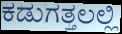
ಕಡುಗತ್ತಲಲ್ಲಿ